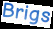
Brigs